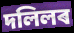
দলিলৰ